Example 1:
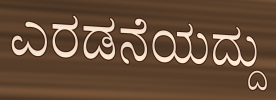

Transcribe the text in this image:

ಎರಡನೆಯದ್ದು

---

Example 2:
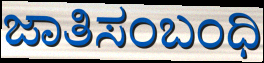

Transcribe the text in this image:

ಜಾತಿಸಂಬಂಧಿ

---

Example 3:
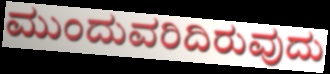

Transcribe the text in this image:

ಮುಂದುವರಿದಿರುವುದು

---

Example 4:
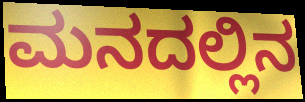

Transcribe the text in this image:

ಮನದಲ್ಲಿನ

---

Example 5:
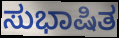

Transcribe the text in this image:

ಸುಭಾಷಿತ